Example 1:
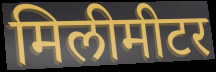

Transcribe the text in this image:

मिलीमीटर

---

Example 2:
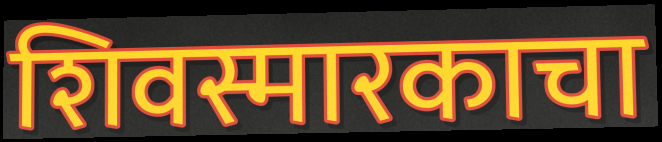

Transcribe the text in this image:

शिवस्मारकाचा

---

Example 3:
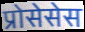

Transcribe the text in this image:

प्रोसेसेस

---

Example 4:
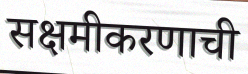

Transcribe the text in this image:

सक्षमीकरणाची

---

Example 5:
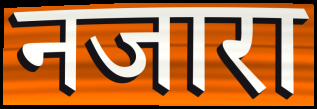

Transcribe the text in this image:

नजारा